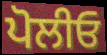
ਪੋਲੀਓ